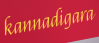
kannadigara